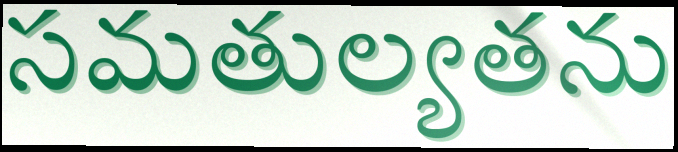
సమతుల్యతను